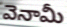
వెనామీ